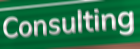
Consulting